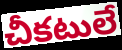
చీకటులే